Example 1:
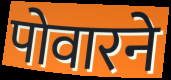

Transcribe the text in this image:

पोवारने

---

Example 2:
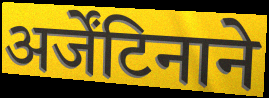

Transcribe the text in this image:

अर्जेंटिनाने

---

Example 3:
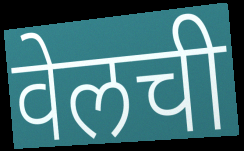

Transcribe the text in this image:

वेलची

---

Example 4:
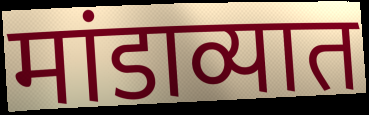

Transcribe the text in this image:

मांडाव्यात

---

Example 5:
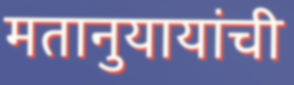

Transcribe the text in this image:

मतानुयायांची